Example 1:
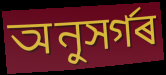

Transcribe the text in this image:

অনুসৰ্গৰ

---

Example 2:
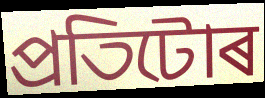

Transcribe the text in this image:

প্ৰতিটোৰ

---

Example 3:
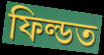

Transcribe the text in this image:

ফিল্ডত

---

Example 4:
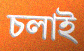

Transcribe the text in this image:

চলাই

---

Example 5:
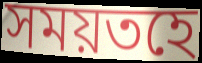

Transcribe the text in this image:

সময়তহে